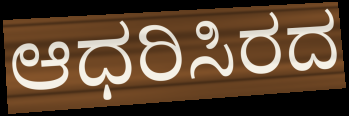
ಆಧರಿಸಿರದ